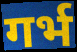
गर्भ